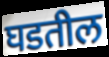
घडतील